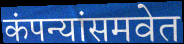
कंपन्यांसमवेत